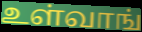
உள்வாங்